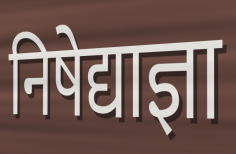
निषेद्याज्ञा